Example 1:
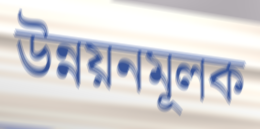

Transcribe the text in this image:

উন্নয়নমূলক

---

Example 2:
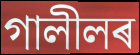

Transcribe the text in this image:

গালীলৰ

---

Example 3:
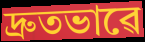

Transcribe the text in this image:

দ্ৰুতভাৱে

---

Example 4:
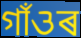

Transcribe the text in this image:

গাঁওৰ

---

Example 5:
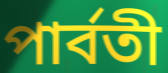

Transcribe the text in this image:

পাৰ্বতী